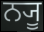
ਨ੍ਯੂ